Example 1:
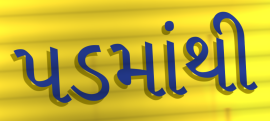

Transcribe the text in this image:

પડમાંથી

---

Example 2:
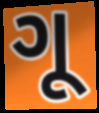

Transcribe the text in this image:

ગૂ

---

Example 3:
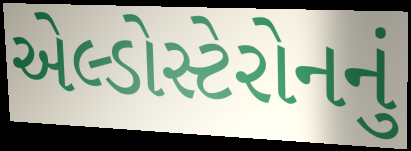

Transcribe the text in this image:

એલ્ડોસ્ટેરોનનું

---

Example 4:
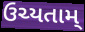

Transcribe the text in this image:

ઉચ્યતામ્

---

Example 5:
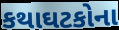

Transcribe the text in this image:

કથાઘટકોના